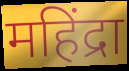
महिंद्रा